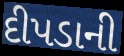
દીપડાની